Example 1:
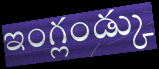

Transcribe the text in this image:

ఇంగ్లండ్కు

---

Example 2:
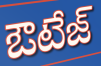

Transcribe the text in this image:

ఔటేజ్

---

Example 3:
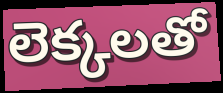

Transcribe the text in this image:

లెక్కలతో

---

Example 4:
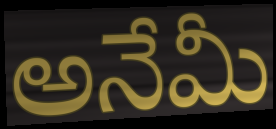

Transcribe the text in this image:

అనేమీ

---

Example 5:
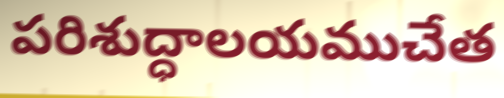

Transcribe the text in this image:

పరిశుద్ధాలయముచేత